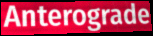
Anterograde